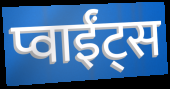
प्वाईंट्स